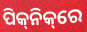
ପିକ୍‌ନିକ୍‌ରେ